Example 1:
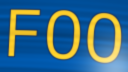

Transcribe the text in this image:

FOO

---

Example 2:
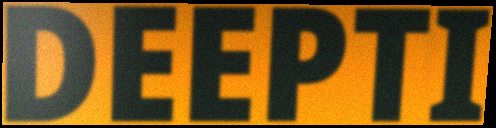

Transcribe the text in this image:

DEEPTI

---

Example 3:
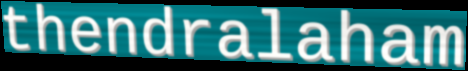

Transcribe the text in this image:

thendralaham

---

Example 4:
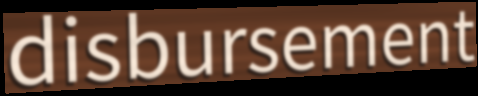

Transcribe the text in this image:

disbursement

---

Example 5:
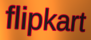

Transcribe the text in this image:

flipkart